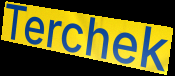
Terchek